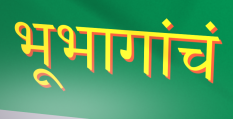
भूभागांचं